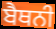
ਬੈਥਨੀ